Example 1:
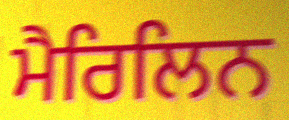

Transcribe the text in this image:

ਮੈਰਿਲਿਨ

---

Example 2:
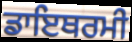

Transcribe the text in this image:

ਡਾਇਥਰਮੀ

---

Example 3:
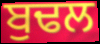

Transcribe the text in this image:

ਬੁਢਲ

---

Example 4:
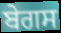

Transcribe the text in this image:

ਬੇਗਸ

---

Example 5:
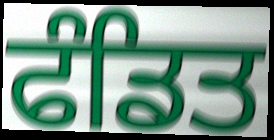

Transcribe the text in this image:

ਫੰਡਿਤ